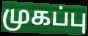
முகப்பு